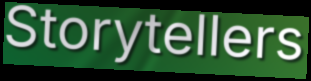
Storytellers